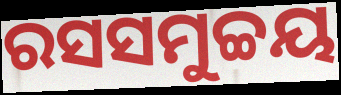
ରସସମୁଚ୍ଚୟ